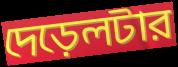
দেড়েলটার